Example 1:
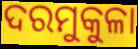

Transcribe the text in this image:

ଦରମୁକୁଳା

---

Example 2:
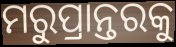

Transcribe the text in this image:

ମରୁପ୍ରାନ୍ତରକୁ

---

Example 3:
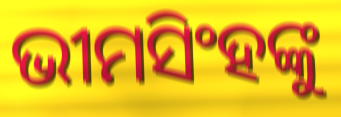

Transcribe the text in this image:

ଭୀମସିଂହଙ୍କୁ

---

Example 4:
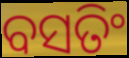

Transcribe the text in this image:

ବସତିଂ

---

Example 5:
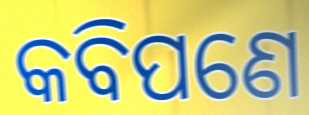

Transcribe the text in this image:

କବିପଣେ